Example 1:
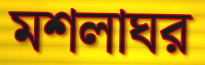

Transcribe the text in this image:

মশলাঘর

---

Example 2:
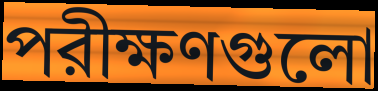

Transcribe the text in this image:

পরীক্ষণগুলো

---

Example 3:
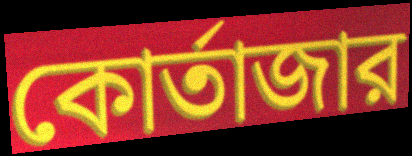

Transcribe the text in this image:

কোর্তাজার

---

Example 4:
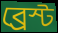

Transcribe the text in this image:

ব্রেস্ট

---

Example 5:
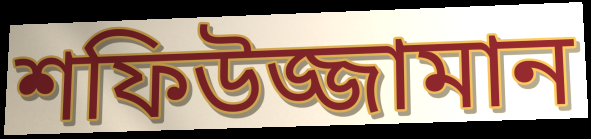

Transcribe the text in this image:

শফিউজ্জামান